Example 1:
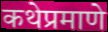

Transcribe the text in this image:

कथेप्रमाणे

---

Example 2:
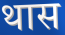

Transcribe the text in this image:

थास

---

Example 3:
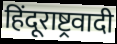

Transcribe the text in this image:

हिंदूराष्ट्रवादी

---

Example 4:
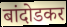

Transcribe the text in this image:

बांदोडकर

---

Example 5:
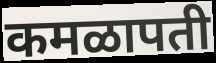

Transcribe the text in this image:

कमळापती